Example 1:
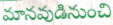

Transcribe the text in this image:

మానవుడినుంచి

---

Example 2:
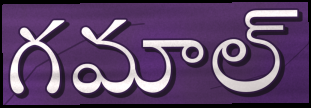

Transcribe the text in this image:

గమాల్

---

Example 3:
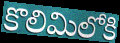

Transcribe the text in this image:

కొలిమిలోకి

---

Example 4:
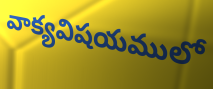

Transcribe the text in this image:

వాక్యవిషయములో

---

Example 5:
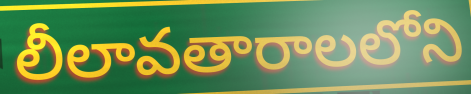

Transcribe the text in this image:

లీలావతారాలలోని